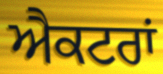
ਐਕਟਰਾਂ